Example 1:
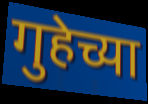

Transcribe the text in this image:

गुहेच्या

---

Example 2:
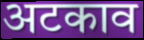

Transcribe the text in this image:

अटकाव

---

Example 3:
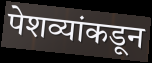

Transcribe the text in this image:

पेशव्यांकडून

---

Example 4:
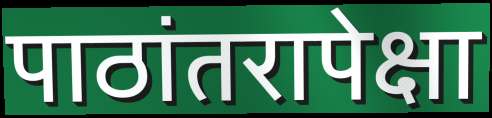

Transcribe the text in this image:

पाठांतरापेक्षा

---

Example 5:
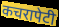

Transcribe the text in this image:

कचरापेटी